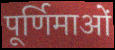
पूर्णिमाओं